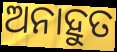
ଅନାହୁତ